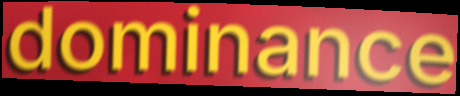
dominance